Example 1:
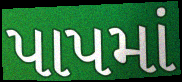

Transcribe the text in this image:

પાપમાં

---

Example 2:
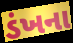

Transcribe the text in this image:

ડંખના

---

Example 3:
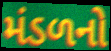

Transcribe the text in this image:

મંડળનો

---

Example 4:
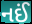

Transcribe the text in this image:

નઈં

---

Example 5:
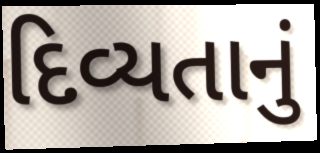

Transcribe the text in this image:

દિવ્યતાનું